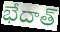
భేదాత్